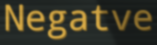
Negatve